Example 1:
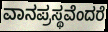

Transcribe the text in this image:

ವಾನಪ್ರಸ್ಥವೆಂದರೆ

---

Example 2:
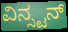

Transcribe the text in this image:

ವಿನ್ಸ್ಟನ್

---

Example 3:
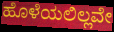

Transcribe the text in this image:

ಹೊಳೆಯಲಿಲ್ಲವೇ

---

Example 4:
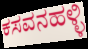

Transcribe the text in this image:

ಕಸವನಹಳ್ಳಿ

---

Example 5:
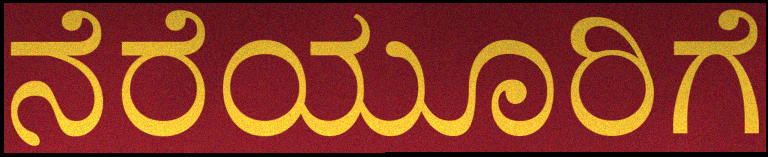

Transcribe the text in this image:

ನೆರೆಯೂರಿಗೆ